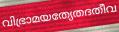
വിഭ്രാമയത്യേതദതീവ